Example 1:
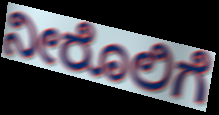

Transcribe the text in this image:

ನೀರೊಲಿಗೆ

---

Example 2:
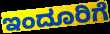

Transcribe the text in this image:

ಇಂದೂರಿಗೆ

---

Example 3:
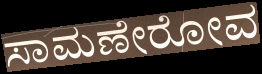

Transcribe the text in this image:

ಸಾಮಣೇರೋವ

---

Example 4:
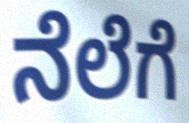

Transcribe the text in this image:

ನೆಲೆಗೆ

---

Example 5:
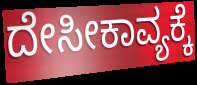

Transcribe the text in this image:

ದೇಸೀಕಾವ್ಯಕ್ಕೆ